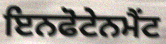
ਇਨਫੋਟੇਨਮੈਂਟ